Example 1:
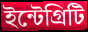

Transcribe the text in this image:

ইন্টেগ্রিটি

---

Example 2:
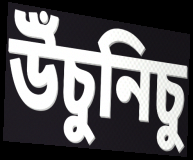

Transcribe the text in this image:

উঁচুনিচু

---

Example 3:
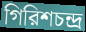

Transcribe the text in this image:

গিরিশচন্দ্র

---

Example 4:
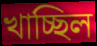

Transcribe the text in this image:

খাচ্ছিল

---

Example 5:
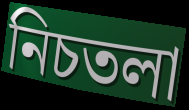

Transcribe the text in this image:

নিচতলা